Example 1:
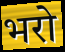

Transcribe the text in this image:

भरो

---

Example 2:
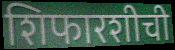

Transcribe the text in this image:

शिफारशीची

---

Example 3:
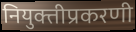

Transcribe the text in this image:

नियुक्तीप्रकरणी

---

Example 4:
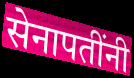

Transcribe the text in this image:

सेनापतींनी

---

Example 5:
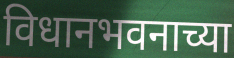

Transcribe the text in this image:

विधानभवनाच्या